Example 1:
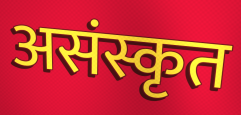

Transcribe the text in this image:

असंस्कृत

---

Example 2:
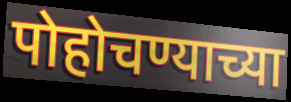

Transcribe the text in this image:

पोहोचण्याच्या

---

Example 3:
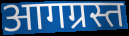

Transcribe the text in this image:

आगग्रस्त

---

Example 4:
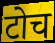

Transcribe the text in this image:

टोच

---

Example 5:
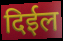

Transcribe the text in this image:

दिईल